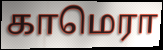
காமெரா